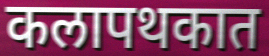
कलापथकात